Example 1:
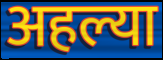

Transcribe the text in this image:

अहल्या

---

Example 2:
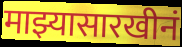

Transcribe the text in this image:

माझ्यासारखीनं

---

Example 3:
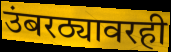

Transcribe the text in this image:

उंबरठ्यावरही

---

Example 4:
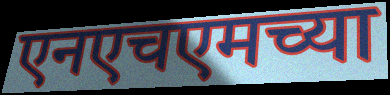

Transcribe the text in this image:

एनएचएमच्या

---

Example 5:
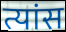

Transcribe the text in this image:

त्यांस